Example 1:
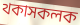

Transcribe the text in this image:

থকাসকলক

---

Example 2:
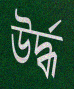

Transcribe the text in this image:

উৰ্দ্ধ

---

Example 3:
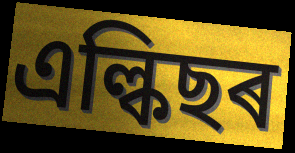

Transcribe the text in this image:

এল্কিছৰ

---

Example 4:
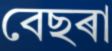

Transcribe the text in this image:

বেছৰা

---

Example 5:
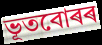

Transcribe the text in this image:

ভূতবোৰৰ